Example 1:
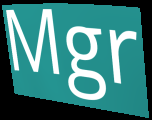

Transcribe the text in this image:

Mgr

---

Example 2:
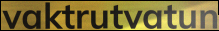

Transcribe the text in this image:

vaktrutvatun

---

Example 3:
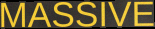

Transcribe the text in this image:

MASSIVE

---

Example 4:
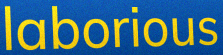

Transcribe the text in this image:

laborious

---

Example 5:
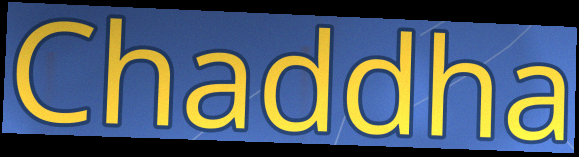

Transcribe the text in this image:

Chaddha